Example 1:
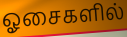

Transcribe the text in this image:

ஓசைகளில்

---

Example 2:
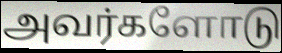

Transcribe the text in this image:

அவர்களோடு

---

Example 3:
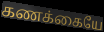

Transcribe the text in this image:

கணக்கையே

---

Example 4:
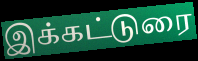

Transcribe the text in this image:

இக்கட்டுரை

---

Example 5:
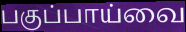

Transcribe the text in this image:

பகுப்பாய்வை